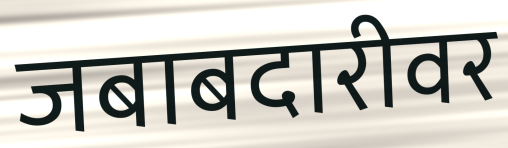
जबाबदारीवर